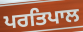
ਪਰਤਿਪਾਲ